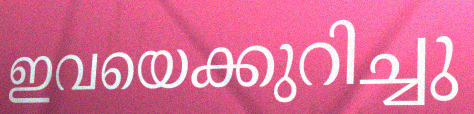
ഇവയെക്കുറിച്ചു